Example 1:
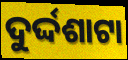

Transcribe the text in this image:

ଦୁର୍ଦ୍ଦଶାଟା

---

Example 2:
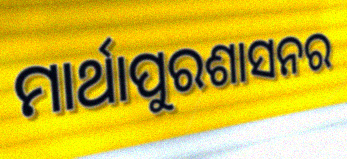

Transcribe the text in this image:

ମାର୍ଥାପୁରଶାସନର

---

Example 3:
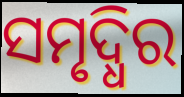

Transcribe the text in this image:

ସମୃଦ୍ଧିର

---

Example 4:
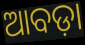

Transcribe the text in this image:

ଆବଡ଼ା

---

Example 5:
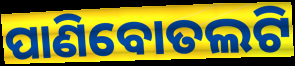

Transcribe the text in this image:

ପାଣିବୋତଲଟି